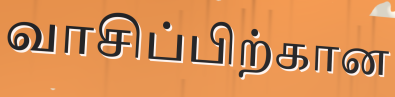
வாசிப்பிற்கான